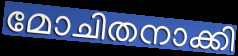
മോചിതനാക്കി